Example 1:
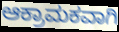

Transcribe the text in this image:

ಆಕ್ರಾಮಕವಾಗಿ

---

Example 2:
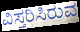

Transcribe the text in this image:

ವಿಸ್ತರಿಸಿರುವ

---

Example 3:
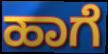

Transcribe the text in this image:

ಹಾಗೆ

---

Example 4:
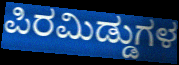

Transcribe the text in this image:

ಪಿರಮಿಡ್ಡುಗಳ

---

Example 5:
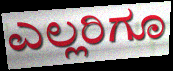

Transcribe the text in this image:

ಎಲ್ಲರಿಗೂ